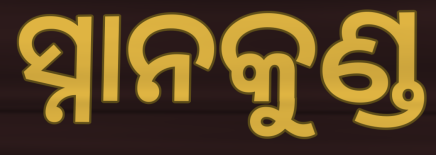
ସ୍ନାନକୁଣ୍ଡ